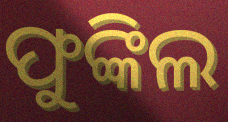
ଫୁଙ୍କିଲ